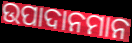
ଉପାଦାନମାନ